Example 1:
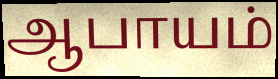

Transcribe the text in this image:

ஆபாயம்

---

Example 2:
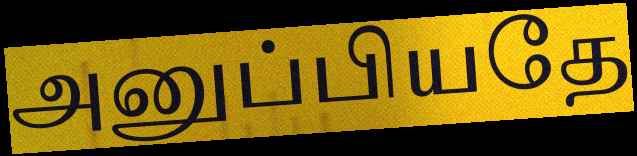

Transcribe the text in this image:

அனுப்பியதே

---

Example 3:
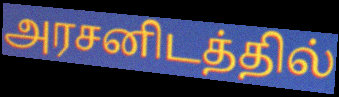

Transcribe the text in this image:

அரசனிடத்தில்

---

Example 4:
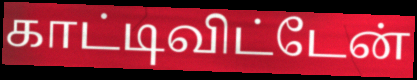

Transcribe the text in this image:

காட்டிவிட்டேன்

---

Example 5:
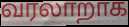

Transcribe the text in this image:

வரலாறாக